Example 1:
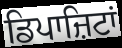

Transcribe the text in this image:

ਡਿਪਾਜ਼ਿਟਾਂ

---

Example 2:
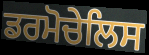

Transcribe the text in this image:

ਡਰਮੋਚੇਲਿਸ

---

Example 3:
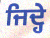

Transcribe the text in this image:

ਜਿਦ੍ਹੇ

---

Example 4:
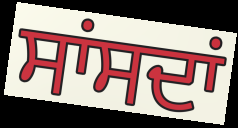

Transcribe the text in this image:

ਸਾਂਸਦਾਂ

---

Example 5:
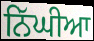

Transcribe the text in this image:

ਨਿੱਘੀਆ